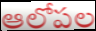
ఆలోపల